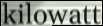
kilowatt